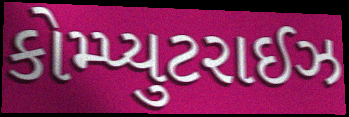
કોમ્પ્યુટરાઈઝ